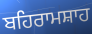
ਬਹਿਰਾਮਸ਼ਾਹ